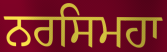
ਨਰਸਿਮਹਾ